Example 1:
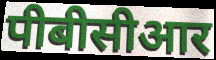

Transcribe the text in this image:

पीबीसीआर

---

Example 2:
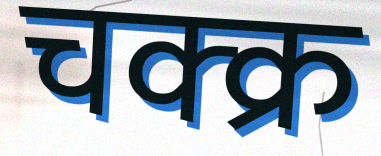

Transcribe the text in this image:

चक्क्र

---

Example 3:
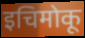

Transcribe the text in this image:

इचिमोकू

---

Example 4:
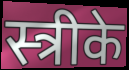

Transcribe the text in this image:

स्त्रीके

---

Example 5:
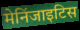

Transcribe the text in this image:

मेनिंजाइटिस